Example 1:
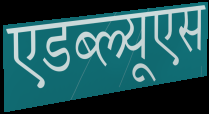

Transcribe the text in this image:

एडब्ल्यूएस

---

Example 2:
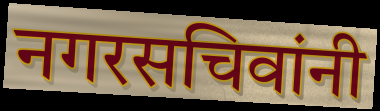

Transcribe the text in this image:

नगरसचिवांनी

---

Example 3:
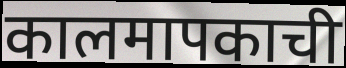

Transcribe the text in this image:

कालमापकाची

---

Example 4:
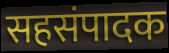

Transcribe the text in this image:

सहसंपादक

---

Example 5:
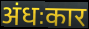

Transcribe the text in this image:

अंधःकार